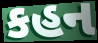
કહન